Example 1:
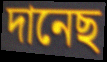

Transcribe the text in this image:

দানেছ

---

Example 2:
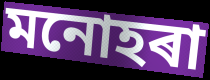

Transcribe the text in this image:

মনোহৰা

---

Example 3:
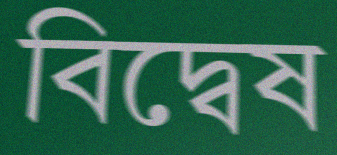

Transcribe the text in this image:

বিদ্বেষ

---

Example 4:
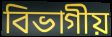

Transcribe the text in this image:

বিভাগীয়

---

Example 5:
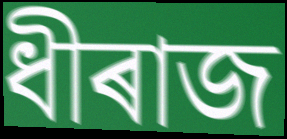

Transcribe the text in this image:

ধীৰাজ